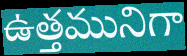
ఉత్తమునిగా